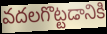
వదలగొట్టడానికి